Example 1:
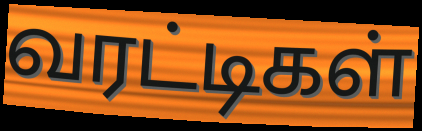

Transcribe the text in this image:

வரட்டிகள்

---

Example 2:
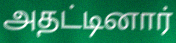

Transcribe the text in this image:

அதட்டினார்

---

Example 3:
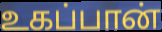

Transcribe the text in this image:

உகப்பான்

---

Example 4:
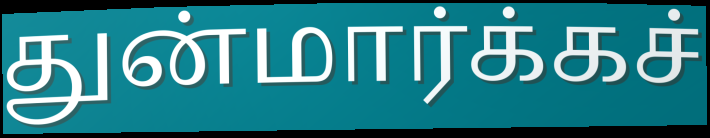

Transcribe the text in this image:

துன்மார்க்கச்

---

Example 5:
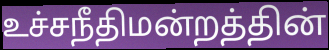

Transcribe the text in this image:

உச்சநீதிமன்றத்தின்